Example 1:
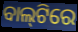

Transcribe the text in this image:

ବାଲ୍‌ଟିରେ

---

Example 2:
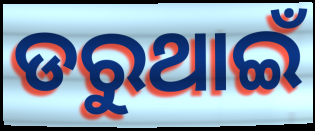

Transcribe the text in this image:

ଡରୁଥାଇଁ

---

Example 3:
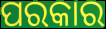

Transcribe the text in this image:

ପରକାର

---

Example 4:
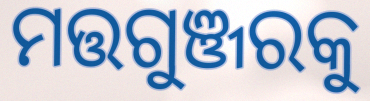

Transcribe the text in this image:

ମତ୍ତଗୁଞ୍ଜରକୁ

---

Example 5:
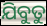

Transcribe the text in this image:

ଯିବୁତୁ